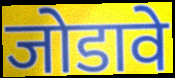
जोडावे